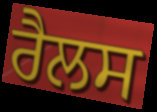
ਰੈਲਸ